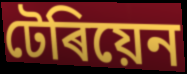
টেৰিয়েন